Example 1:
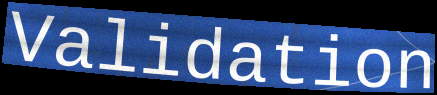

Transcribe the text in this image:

Validation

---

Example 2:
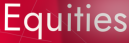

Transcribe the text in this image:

Equities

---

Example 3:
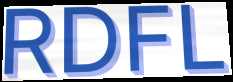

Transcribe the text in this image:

RDFL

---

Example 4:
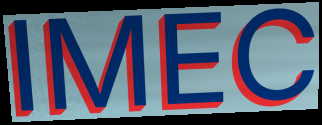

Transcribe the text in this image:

IMEC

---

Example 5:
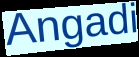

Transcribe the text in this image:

Angadi